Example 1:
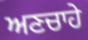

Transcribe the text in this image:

ਅਣਚਾਹੇ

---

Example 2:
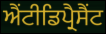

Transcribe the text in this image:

ਐਂਟੀਡਿਪ੍ਰੈਸੈਂਟ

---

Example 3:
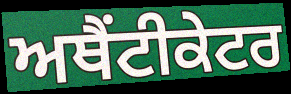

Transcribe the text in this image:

ਅਥੈਂਟੀਕੇਟਰ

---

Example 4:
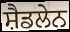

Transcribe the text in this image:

ਸ਼ੈਡਲੇਨ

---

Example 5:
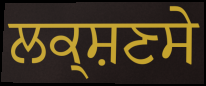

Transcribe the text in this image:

ਲਕ੍ਸ਼ਣਸੇ